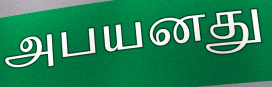
அபயனது